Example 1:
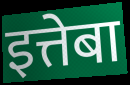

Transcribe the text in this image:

इत्तेबा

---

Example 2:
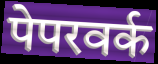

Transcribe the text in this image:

पेपरवर्क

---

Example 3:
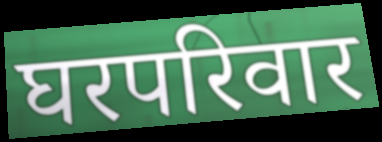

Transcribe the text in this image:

घरपरिवार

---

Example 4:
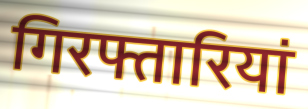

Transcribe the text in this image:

गिरफ्तारियां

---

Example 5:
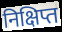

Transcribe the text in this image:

निक्षिप्त